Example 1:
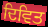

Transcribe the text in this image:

ਦਿਵਿਤ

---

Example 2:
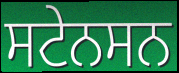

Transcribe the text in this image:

ਸਟੇਨਸਨ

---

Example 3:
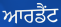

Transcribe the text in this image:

ਆਰਡੈਂਟ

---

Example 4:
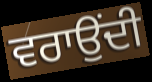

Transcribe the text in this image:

ਵਰਾਉਂਦੀ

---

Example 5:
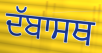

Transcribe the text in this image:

ਦੱਬਾਸਥ